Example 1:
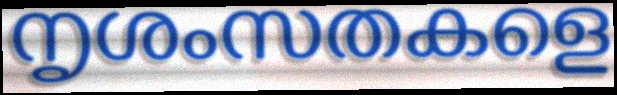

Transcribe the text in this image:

നൃശംസതകളെ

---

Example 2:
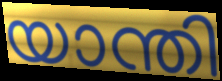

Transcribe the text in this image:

യാന്തി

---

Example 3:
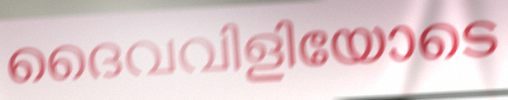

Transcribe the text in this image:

ദൈവവിളിയോടെ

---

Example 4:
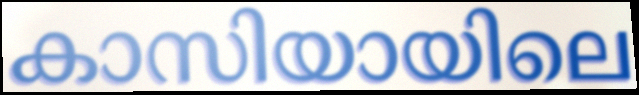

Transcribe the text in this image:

കാസിയായിലെ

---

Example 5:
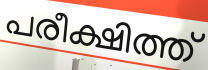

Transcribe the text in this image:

പരീക്ഷിത്ത്